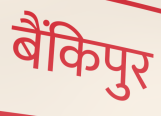
बैंकिपुर